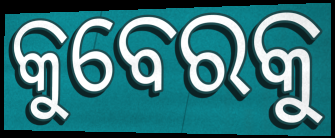
କୁବେରକୁ